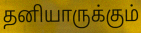
தனியாருக்கும்